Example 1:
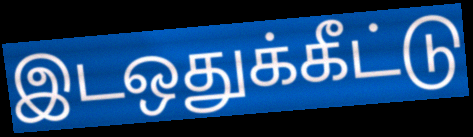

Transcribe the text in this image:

இடஒதுக்கீட்டு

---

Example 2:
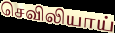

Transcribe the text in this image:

செவிலியாய்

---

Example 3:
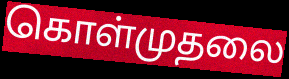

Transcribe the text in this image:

கொள்முதலை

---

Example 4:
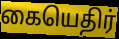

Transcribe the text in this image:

கையெதிர்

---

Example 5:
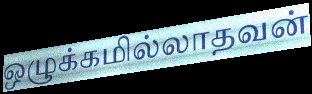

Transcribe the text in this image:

ஒழுக்கமில்லாதவன்